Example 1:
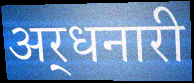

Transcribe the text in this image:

अर्धनारी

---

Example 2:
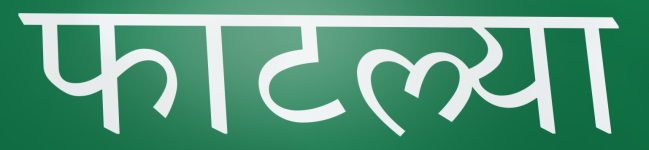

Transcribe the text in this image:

फाटल्या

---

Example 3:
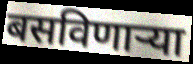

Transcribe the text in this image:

बसविणार्‍या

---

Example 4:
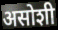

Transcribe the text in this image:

असोशी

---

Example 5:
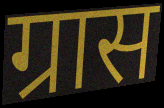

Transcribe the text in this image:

ग्रास